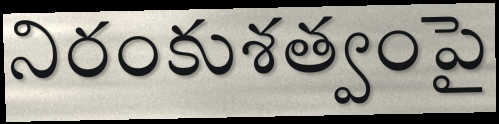
నిరంకుశత్వంపై